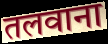
तलवाना